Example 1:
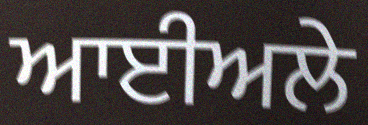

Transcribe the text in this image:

ਆਈਅਲੇ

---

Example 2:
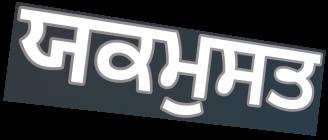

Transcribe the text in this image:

ਯਕਮੁਸਤ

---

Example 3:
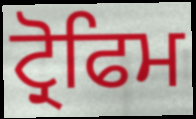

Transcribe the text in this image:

ਟ੍ਰੋਫਿਮ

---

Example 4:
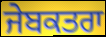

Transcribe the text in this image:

ਜੇਬਕਤਰਾ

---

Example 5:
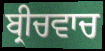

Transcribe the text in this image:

ਬ੍ਰੀਚਵਾਚ